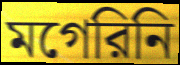
মগেরিনি